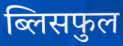
ब्लिसफुल